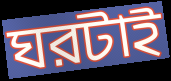
ঘরটাই